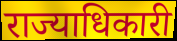
राज्याधिकारी